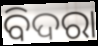
ବିଦରା